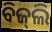
ବିଜ୍‍ଲି